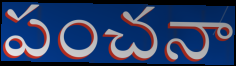
పంచనా